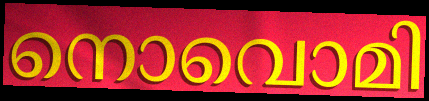
നൊവൊമി